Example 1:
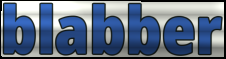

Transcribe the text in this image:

blabber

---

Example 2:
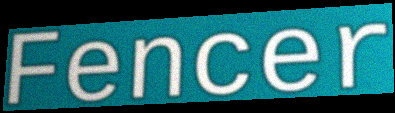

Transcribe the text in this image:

Fencer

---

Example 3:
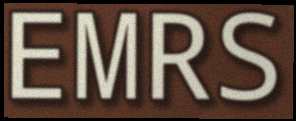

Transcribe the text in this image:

EMRS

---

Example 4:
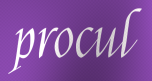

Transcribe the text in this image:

procul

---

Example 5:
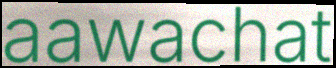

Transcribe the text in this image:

aawachat